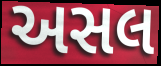
અસલ